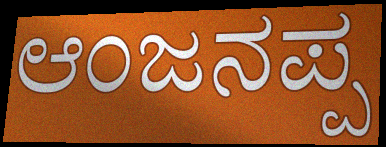
ಆಂಜನಪ್ಪ